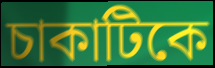
চাকাটিকে